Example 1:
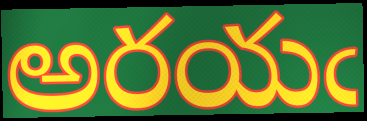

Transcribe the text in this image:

అరయఁ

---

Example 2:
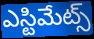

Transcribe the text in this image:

ఎస్టిమేట్స్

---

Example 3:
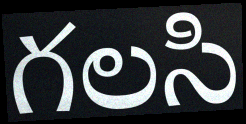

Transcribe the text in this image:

గలసి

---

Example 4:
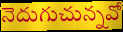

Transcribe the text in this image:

నెదుగుచున్నవో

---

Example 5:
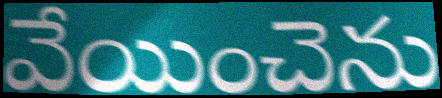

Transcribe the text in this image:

వేయించెను